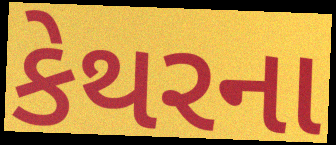
કેથરના